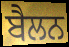
ਬੈਲਨ